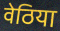
वेठिया